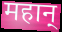
महान्